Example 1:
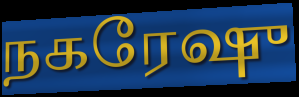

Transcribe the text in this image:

நகரேஷு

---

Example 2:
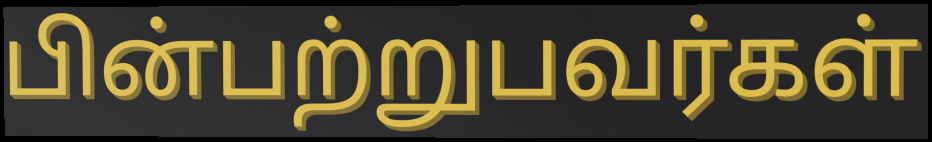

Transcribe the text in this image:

பின்பற்றுபவர்கள்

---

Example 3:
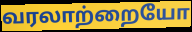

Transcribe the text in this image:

வரலாற்றையோ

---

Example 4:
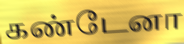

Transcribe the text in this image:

கண்டேனா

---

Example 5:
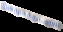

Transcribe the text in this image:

இன்முகத்துடனும்